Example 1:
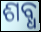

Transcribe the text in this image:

ଶବ୍ଧ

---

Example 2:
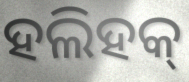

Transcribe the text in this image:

ହଲିହକ୍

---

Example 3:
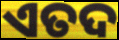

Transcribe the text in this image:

ଏତଦ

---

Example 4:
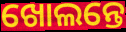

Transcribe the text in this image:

ଖୋଲନ୍ତେ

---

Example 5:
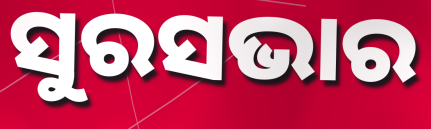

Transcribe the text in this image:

ସୁରସଭାର